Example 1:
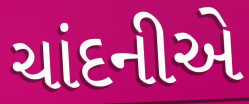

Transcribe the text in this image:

ચાંદનીએ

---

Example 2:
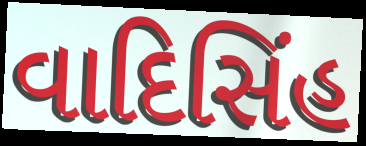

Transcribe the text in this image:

વાદિસિંહ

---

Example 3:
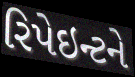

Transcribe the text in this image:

રિપેઇન્ટને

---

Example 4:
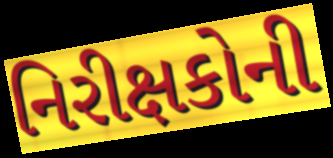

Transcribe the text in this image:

નિરીક્ષકોની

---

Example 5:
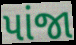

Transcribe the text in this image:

પાંજા